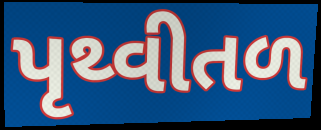
પૃથ્વીતળ